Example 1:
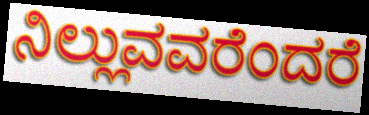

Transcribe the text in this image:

ನಿಲ್ಲುವವರೆಂದರೆ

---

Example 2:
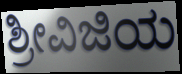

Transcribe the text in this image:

ಶ್ರೀವಿಜಿಯ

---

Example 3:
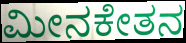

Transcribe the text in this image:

ಮೀನಕೇತನ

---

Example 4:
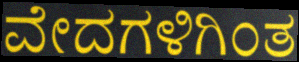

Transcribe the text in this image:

ವೇದಗಳಿಗಿಂತ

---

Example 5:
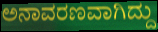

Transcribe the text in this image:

ಅನಾವರಣವಾಗಿದ್ದು